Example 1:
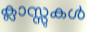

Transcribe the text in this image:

ക്ലാസ്സുകൾ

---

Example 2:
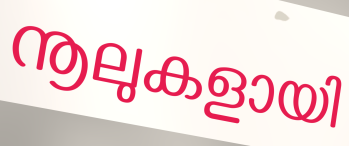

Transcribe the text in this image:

നൂലുകളായി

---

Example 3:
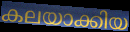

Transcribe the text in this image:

കലയാക്കിയ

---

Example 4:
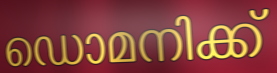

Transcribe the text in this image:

ഡൊമനിക്ക്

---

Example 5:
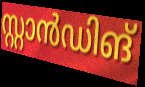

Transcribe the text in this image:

സ്റ്റാൻഡിങ്